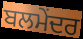
ਬਲਮੇਂਦਰ